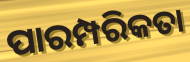
ପାରମ୍ପରିକତା